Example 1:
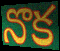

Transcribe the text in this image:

నొక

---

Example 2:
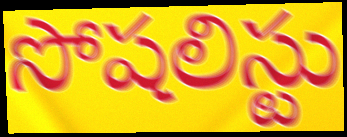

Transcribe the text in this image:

సోషలిస్టు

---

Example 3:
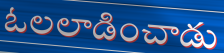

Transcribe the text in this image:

ఓలలాడించాడు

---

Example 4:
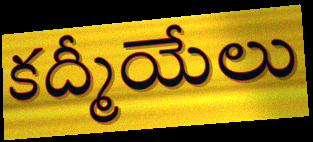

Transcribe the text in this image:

కద్మీయేలు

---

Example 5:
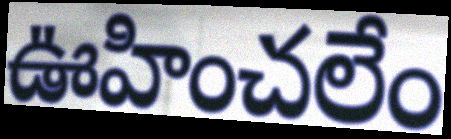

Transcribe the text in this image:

ఊహించలేం